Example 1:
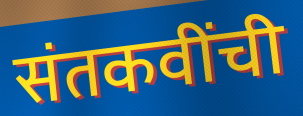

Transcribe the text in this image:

संतकवींची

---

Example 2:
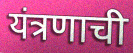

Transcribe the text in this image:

यंत्रणाची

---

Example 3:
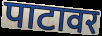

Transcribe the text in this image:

पाटावर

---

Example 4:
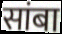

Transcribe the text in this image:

सांबा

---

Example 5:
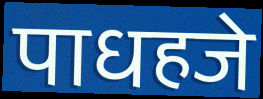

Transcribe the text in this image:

पाधहजे